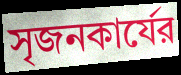
সৃজনকার্যের